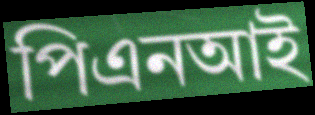
পিএনআই